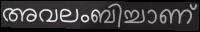
അവലംബിച്ചാണ്